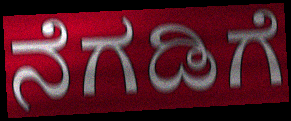
ನೆಗಡಿಗೆ